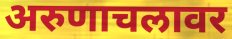
अरुणाचलावर